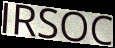
IRSOC